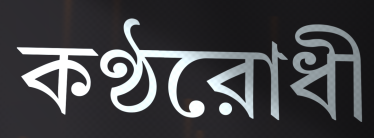
কণ্ঠরোধী